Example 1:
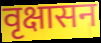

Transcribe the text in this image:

वृक्षासन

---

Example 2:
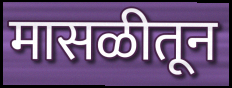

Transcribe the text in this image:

मासळीतून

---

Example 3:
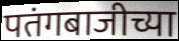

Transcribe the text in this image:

पतंगबाजीच्या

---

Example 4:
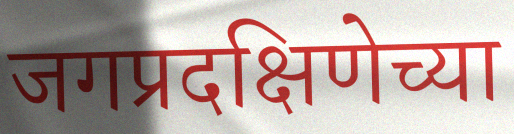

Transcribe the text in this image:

जगप्रदक्षिणेच्या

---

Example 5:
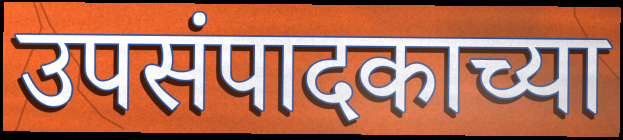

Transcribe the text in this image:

उपसंपादकाच्या